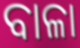
ବାଳା